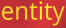
entity